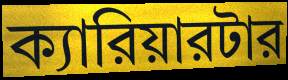
ক্যারিয়ারটার